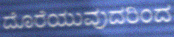
ದೊರೆಯುವುದರಿಂದ